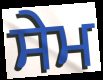
ਸੇਮ